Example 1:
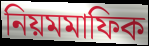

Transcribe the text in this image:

নিয়মমাফিক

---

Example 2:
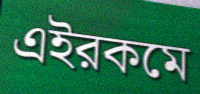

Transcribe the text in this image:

এইরকমে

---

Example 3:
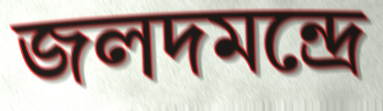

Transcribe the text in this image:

জলদমন্দ্রে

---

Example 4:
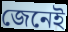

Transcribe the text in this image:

জেনেই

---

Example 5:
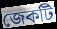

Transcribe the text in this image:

জেকটি